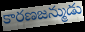
కారణజన్ముడు